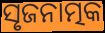
ସୃଜନାତ୍ମକ